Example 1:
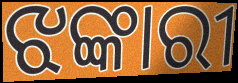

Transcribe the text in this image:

ଝଙ୍କାରୀ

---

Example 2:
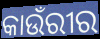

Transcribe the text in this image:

କାଉଁରୀର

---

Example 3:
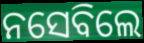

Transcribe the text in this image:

ନସେବିଲେ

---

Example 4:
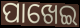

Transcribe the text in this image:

ପାଖେଇ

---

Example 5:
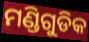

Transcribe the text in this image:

ମଣ୍ଡିଗୁଡିକ